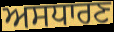
ਅਸਧਾਰਣ